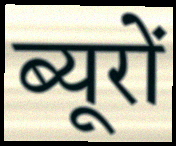
ब्यूरों